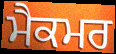
ਮੈਕਮਰ